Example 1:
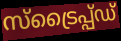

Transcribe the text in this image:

സ്ട്രൈപ്പ്ഡ്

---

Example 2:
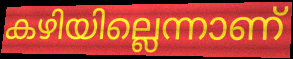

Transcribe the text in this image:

കഴിയില്ലെന്നാണ്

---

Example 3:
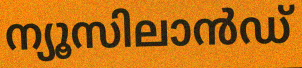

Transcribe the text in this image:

ന്യൂസിലാൻഡ്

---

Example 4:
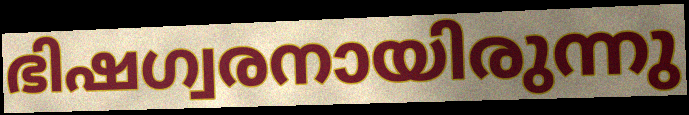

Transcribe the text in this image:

ഭിഷഗ്വരനായിരുന്നു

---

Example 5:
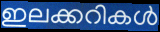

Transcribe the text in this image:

ഇലക്കറികൾ